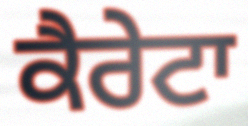
ਕੈਰੇਟਾ